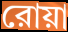
রোয়া